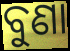
ବୁଣା